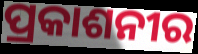
ପ୍ରକାଶନୀର